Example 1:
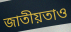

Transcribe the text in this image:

জাতীয়তাও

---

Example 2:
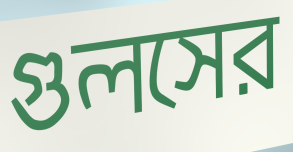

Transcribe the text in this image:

গুলসের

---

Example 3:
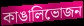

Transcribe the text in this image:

কাঙালিভোজন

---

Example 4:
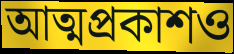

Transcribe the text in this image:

আত্মপ্রকাশও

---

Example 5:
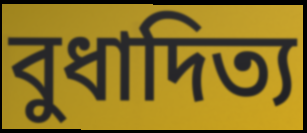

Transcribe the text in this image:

বুধাদিত্য